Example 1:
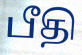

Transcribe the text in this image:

பீதி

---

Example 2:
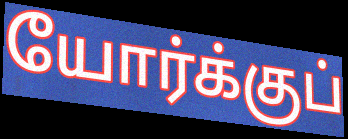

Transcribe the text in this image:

யோர்க்குப்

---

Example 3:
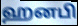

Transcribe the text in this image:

ஹனபி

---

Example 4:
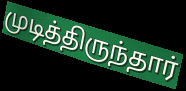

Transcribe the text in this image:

முடித்திருந்தார்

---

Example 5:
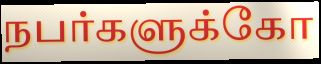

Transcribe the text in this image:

நபர்களுக்கோ